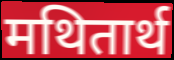
मथितार्थ